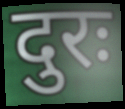
दुरः